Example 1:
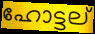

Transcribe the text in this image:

ഹോട്ടല്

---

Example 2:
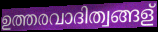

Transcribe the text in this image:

ഉത്തരവാദിത്വങ്ങള്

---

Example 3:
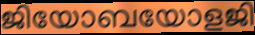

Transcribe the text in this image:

ജിയോബയോളജി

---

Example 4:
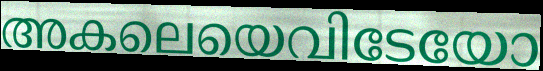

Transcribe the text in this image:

അകലെയെവിടേയോ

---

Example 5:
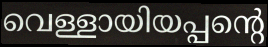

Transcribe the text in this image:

വെള്ളായിയപ്പന്റെ